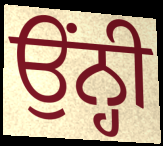
ਉਂਨ੍ਹੀ